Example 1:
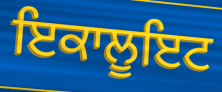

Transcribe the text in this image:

ਇਕਾਲੂਇਟ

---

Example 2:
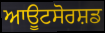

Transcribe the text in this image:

ਆਊਟਸੋਰਸ਼ਡ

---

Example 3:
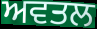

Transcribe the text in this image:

ਅਵਤਲ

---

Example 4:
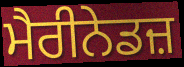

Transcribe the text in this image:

ਮੈਰੀਨੇਡਜ਼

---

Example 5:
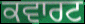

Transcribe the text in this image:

ਕਵਾਰਟ